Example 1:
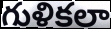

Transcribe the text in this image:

గుళికలా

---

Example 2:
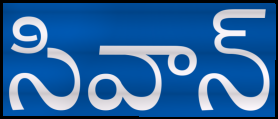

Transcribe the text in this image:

సివాన్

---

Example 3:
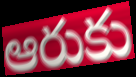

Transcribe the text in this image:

ఆరుకు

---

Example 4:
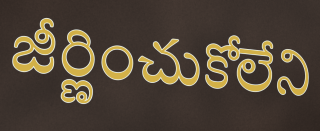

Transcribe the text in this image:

జీర్ణించుకోలేని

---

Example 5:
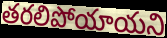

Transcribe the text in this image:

తరలిపోయాయని